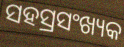
ସହସ୍ରସଂଖ୍ୟକ